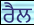
ਰੈਲ